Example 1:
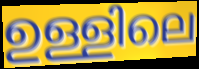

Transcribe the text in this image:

ഉള്ളിലെ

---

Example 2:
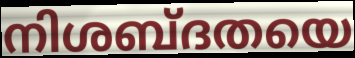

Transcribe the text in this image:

നിശബ്ദതയെ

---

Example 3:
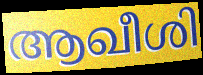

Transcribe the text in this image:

ആഖീശി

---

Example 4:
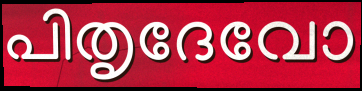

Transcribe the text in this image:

പിതൃദേവോ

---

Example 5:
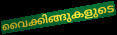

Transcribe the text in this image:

വൈക്കിങ്ങുകളുടെ